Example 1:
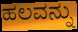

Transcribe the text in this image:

ಹಲವನ್ನು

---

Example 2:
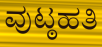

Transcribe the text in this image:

ವುಟ್ಠಹತಿ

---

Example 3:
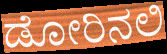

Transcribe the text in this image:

ಡೋರಿನಲಿ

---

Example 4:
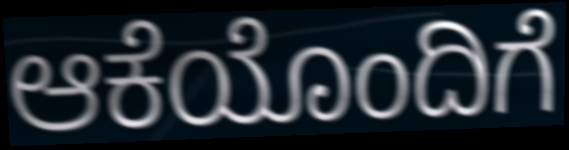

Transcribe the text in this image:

ಆಕೆಯೊಂದಿಗೆ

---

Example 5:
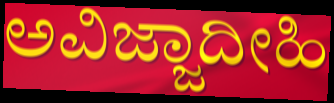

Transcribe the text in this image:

ಅವಿಜ್ಜಾದೀಹಿ